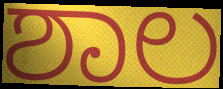
ಶಾಲ